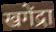
खगेंद्रा